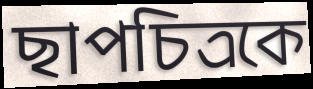
ছাপচিত্রকে